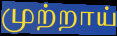
முற்றாய்